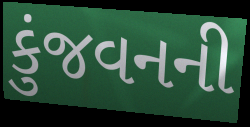
કુંજવનની